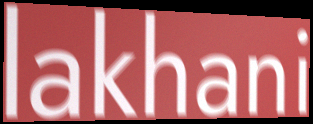
lakhani